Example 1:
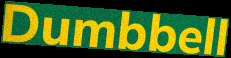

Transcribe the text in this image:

Dumbbell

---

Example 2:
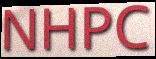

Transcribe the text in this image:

NHPC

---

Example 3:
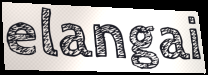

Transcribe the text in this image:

elangai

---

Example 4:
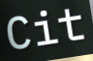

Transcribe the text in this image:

Cit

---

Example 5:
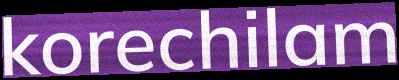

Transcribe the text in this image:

korechilam